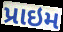
પ્રાઇમ